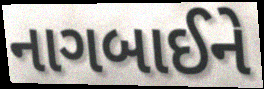
નાગબાઈને